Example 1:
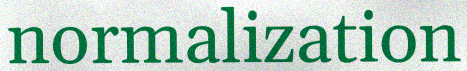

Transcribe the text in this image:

normalization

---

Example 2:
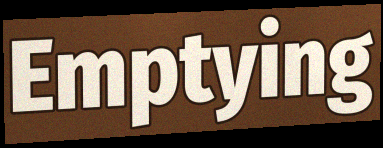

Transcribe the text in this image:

Emptying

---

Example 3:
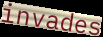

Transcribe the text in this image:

invades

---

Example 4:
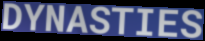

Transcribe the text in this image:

DYNASTIES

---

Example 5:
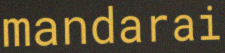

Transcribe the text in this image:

mandarai